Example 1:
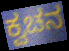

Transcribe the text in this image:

ಕ್ವಚನ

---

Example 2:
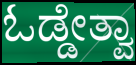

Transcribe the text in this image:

ಓಡ್ಡೇತ್ವಾ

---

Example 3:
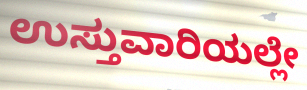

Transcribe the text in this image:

ಉಸ್ತುವಾರಿಯಲ್ಲೇ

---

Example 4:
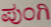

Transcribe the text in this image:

ಪುಂಗಿ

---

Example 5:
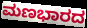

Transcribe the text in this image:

ಮಣಭಾರದ